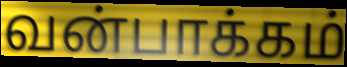
வன்பாக்கம்